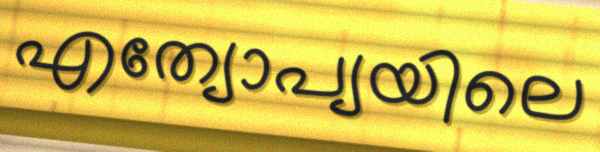
എത്യോപ്യയിലെ